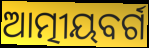
ଆତ୍ମୀୟବର୍ଗ